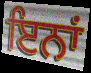
ਇਨਾਂ